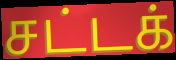
சட்டக்